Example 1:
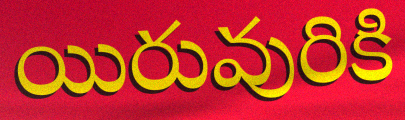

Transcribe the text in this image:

యిరువురికి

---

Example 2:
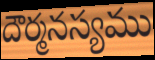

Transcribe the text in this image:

దౌర్మనస్యము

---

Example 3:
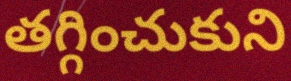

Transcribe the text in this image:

తగ్గించుకుని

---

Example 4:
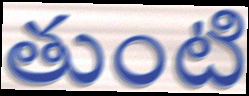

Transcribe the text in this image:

తుంటి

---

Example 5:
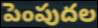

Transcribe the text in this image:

పెంపుదల